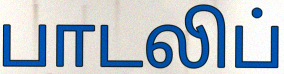
பாடலிப்